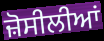
ਜ਼ੋਸੀਲੀਆਂ